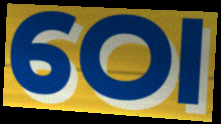
ଠୋ